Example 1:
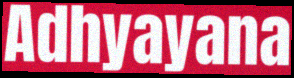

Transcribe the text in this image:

Adhyayana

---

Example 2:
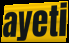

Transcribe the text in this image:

ayeti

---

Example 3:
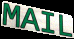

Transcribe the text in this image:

MAIL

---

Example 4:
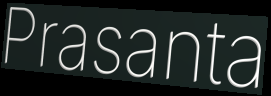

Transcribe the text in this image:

Prasanta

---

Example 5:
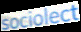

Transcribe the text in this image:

sociolect